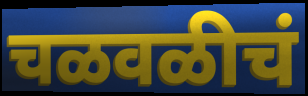
चळवळीचं